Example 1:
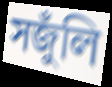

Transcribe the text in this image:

সজুঁলি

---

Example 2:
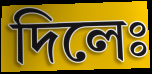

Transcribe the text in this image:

দিলেঃ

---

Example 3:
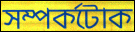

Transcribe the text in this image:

সম্পৰ্কটোক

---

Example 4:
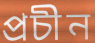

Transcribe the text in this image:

প্ৰচীন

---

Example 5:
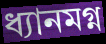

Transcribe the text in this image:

ধ্যানমগ্ন